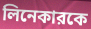
লিনেকারকে